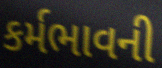
કર્મભાવની